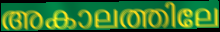
അകാലത്തിലേ